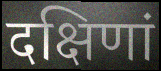
दक्षिणां